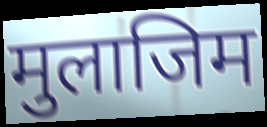
मुलाजिम